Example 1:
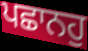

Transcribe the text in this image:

ਪਛਾਨਹੁ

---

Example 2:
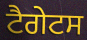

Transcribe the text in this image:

ਟੈਗੇਟਸ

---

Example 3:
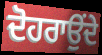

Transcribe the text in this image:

ਦੋਹਰਾਉਂਦੇ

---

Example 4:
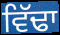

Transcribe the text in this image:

ਵਿੱਢਾ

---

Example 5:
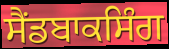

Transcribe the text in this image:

ਸੈਂਡਬਾਕਸਿੰਗ